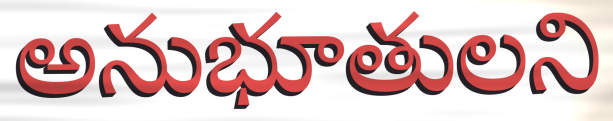
అనుభూతులని